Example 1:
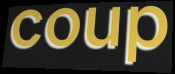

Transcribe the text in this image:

coup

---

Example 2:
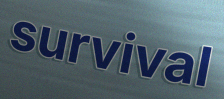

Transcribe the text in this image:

survival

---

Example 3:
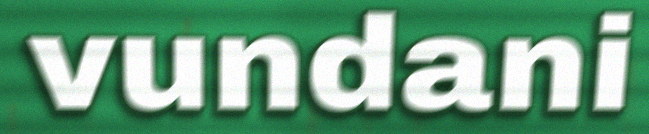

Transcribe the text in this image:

vundani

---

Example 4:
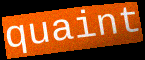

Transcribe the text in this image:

quaint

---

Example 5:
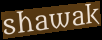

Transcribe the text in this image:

shawak